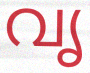
വൃ